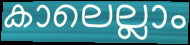
കാലെല്ലാം